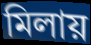
মিলায়